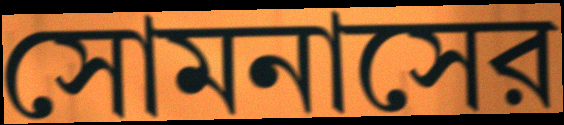
সোমনাসের